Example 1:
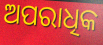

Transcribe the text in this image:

ଅପରାଧିକ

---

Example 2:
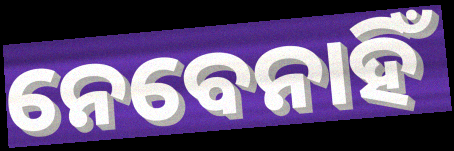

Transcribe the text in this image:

ନେବେନାହିଁ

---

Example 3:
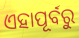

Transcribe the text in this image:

ଏହାପୂର୍ବରୁ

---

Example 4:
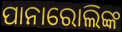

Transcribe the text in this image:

ପାନାରୋଲିଙ୍କ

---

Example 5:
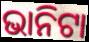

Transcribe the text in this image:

ଭାନିଟା